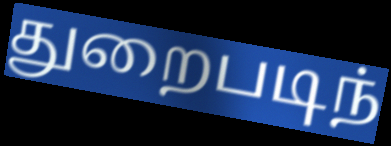
துறைபடிந்